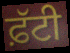
ਫ਼ੱਟੀ